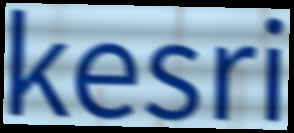
kesri